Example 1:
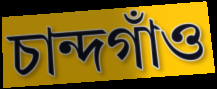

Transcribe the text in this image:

চান্দগাঁও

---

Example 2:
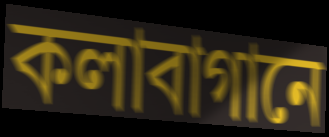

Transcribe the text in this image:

কলাবাগানে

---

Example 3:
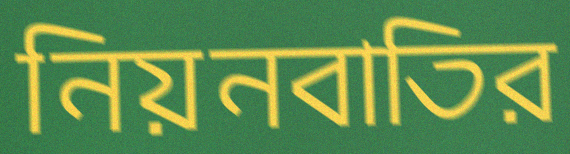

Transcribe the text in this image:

নিয়নবাতির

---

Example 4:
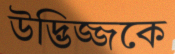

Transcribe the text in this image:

উদ্ভিজ্জকে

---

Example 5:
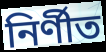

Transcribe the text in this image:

নির্ণীত